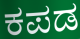
ಕಪಡ